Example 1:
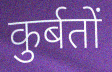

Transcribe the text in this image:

कुर्बतों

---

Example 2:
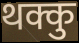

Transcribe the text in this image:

थक्कु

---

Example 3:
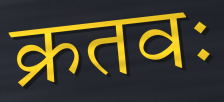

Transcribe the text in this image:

क्रतवः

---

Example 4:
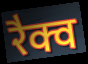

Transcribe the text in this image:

रैक्व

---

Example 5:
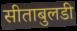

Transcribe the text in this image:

सीताबुलडी